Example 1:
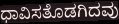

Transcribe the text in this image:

ಧಾವಿಸತೊಡಗಿದವು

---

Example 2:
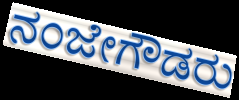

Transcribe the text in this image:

ನಂಜೇಗೌಡರು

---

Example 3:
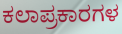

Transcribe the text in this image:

ಕಲಾಪ್ರಕಾರಗಳ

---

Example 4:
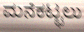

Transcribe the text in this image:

ಮನೆಕಟ್ಟಲು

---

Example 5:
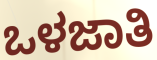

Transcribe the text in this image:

ಒಳಜಾತಿ